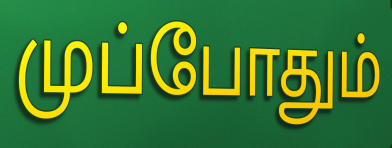
முப்போதும்